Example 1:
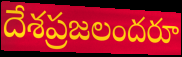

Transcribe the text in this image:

దేశప్రజలందరూ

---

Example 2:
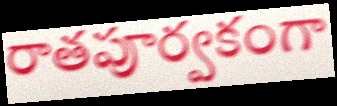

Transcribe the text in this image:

రాతపూర్వకంగా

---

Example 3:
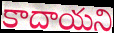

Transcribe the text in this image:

కాదాయని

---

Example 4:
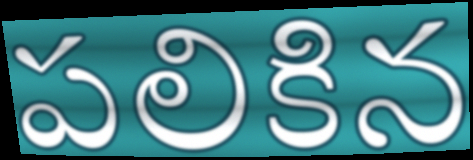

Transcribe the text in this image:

పలికిన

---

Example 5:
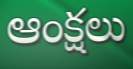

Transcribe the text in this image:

ఆంక్షలు